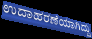
ಉದಾಹರಣೆಯಾಗಿದ್ದು